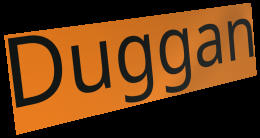
Duggan